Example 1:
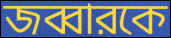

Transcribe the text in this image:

জব্বারকে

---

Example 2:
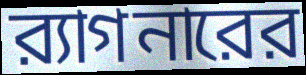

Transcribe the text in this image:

র‍্যাগনারের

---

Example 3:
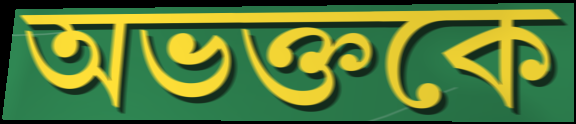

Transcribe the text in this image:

অভক্তকে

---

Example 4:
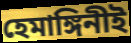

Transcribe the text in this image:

হেমাঙ্গিনীই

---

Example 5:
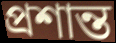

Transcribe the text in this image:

প্রশান্ত